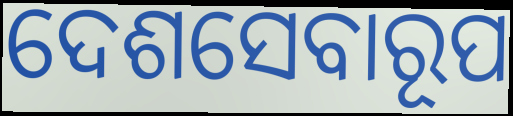
ଦେଶସେବାରୂପ